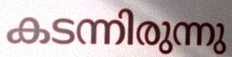
കടന്നിരുന്നു